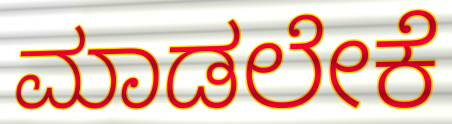
ಮಾಡಲೇಕೆ